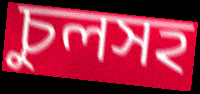
চুলসহ